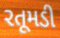
રતૂમડી